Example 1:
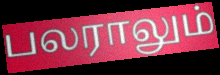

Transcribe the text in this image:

பலராலும்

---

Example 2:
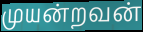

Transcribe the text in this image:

முயன்றவன்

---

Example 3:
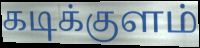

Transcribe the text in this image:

கடிக்குளம்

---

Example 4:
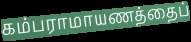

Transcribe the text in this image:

கம்பராமாயணத்தைப்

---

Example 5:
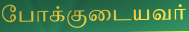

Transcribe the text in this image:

போக்குடையவர்